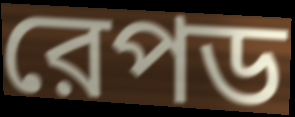
রেপড